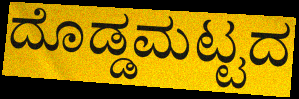
ದೊಡ್ಡಮಟ್ಟದ